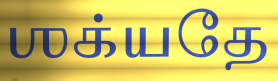
ஶக்யதே